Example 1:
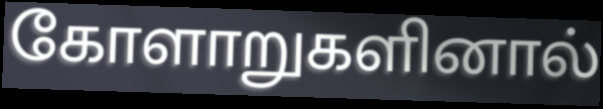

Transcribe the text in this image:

கோளாறுகளினால்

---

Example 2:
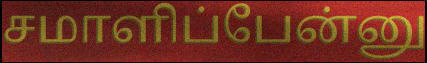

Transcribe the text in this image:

சமாளிப்பேன்னு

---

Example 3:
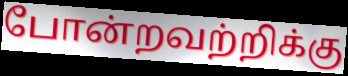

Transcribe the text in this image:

போன்றவற்றிக்கு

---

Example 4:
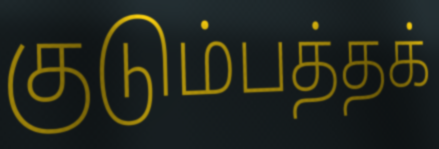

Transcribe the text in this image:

குடும்பத்தக்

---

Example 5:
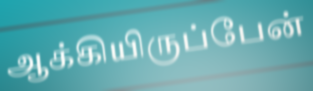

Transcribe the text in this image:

ஆக்கியிருப்பேன்